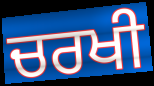
ਚਰਖੀ